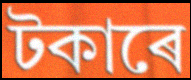
টকাৰে